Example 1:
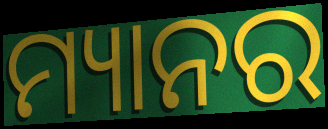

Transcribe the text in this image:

ମ୍ୟାନର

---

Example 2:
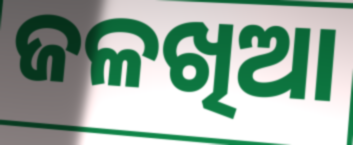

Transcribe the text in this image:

ଜଳଖିଆ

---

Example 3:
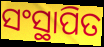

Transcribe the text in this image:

ସଂସ୍ଥାପିତ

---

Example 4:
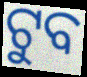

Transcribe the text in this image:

ଟୁବ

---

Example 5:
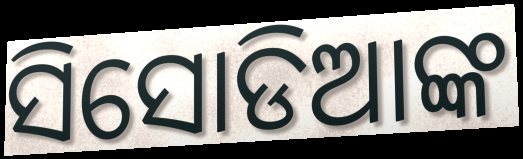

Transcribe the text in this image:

ସିସୋଡିଆଙ୍କ